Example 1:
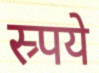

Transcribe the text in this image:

स्र्पये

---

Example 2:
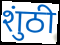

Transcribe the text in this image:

शुंठी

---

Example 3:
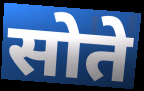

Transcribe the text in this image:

सोते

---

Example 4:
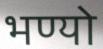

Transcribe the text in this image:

भण्यो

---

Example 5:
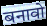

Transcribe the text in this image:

बनावो